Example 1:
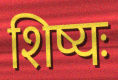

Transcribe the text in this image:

शिष्यः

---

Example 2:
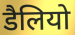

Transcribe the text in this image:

डैलियो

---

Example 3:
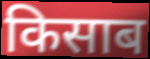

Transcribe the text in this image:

किसाब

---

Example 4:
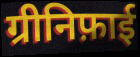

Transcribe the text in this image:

ग्रीनिफ़ाई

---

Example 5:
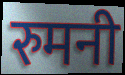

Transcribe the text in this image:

रुमनी